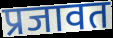
प्रजावत